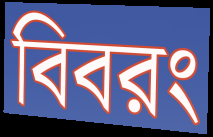
বিবরং